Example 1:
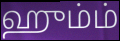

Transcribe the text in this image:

ஹும்ம்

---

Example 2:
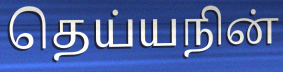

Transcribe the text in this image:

தெய்யநின்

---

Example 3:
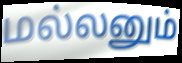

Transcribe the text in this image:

மல்லனும்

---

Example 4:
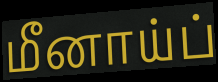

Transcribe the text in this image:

மீனாய்ப்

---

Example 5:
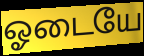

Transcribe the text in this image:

ஓடையே